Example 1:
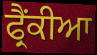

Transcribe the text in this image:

ਫ੍ਰੈਂਕੀਆ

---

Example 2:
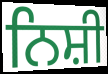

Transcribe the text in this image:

ਨਿਸ਼ੀ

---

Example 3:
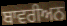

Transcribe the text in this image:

ਬਾਵਰੀਅਨ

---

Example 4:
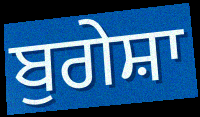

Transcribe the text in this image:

ਬੁਗੇਸ਼ਾ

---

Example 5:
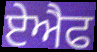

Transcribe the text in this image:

ਏਐਫ